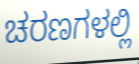
ಚರಣಗಳಲ್ಲಿ